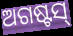
ଅଗଷ୍ଟସ୍